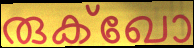
രുക്ഖോ